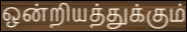
ஒன்றியத்துக்கும்